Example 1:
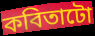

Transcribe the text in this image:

কবিতাটো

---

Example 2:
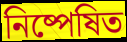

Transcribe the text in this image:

নিষ্পেষিত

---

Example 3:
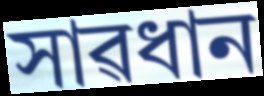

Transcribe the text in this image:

সাৱধান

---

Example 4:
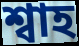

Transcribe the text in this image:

শ্বাহ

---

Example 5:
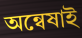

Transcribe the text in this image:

অন্বেষাই